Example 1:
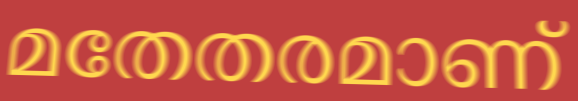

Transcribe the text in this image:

മതേതരമാണ്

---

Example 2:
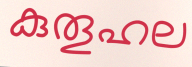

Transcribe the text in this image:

കുതൂഹല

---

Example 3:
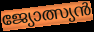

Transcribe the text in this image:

ജ്യോത്സ്യൻ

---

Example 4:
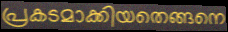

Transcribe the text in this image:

പ്രകടമാക്കിയതെങ്ങനെ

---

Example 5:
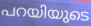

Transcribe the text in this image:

പറയിയുടെ